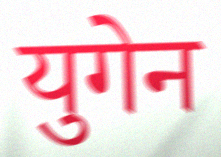
युगेन